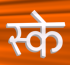
स्के